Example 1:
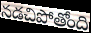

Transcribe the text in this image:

నడచిపోతోంది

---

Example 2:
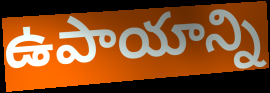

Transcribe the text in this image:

ఉపాయాన్ని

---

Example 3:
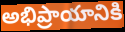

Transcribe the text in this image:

అభిప్రాయానికి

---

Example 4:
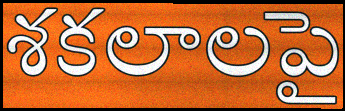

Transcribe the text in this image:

శకలాలపై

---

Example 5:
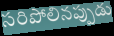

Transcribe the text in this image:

సరిపోలినప్పుడు